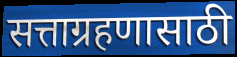
सत्ताग्रहणासाठी